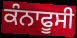
ਕੰਨਾਫੂਸੀ